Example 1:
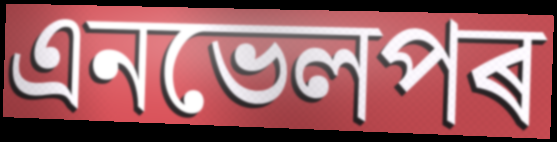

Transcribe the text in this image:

এনভেলপৰ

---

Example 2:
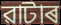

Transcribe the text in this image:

ৱাটাৰ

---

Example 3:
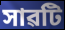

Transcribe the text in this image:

সাৱটি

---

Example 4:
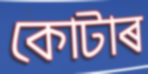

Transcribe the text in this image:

কোটাৰ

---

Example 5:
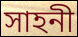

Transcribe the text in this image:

সাহনী